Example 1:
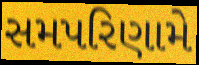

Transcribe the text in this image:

સમપરિણામે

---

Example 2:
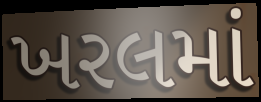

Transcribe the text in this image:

ખરલમાં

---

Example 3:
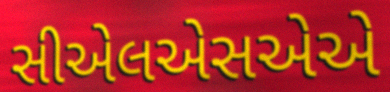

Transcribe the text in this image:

સીએલએસએએ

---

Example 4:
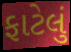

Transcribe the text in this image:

ફાટેલું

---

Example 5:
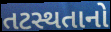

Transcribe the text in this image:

તટસ્થતાનો